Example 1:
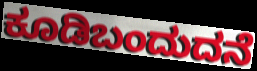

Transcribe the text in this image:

ಕೂಡಿಬಂದುದನೆ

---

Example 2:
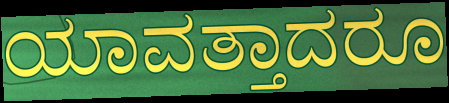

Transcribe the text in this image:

ಯಾವತ್ತಾದರೂ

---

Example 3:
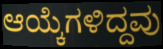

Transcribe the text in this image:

ಆಯ್ಕೆಗಳಿದ್ದವು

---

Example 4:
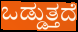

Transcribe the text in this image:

ಒಡ್ಡುತ್ತದೆ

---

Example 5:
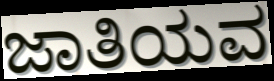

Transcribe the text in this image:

ಜಾತಿಯವ